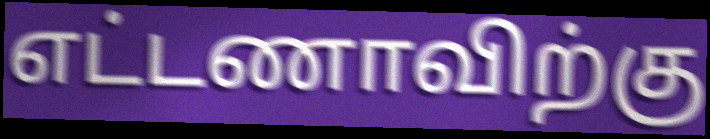
எட்டணாவிற்கு